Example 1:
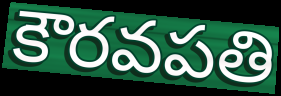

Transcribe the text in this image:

కౌరవపతి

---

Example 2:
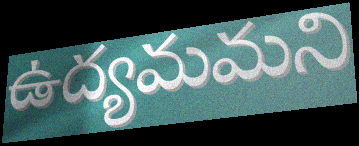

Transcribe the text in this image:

ఉద్యమమని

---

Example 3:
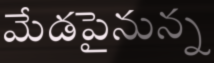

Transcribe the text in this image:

మేడపైనున్న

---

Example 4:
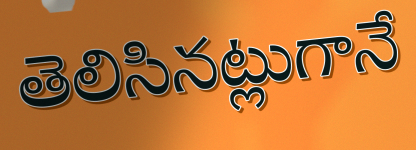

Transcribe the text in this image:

తెలిసినట్లుగానే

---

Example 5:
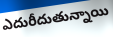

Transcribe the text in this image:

ఎదురీదుతున్నాయి